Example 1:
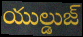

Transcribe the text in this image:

యుల్డుజ్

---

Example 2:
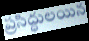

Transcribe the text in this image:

ప్రసిద్ధులయిన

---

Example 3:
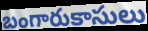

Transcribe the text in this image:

బంగారుకాసులు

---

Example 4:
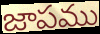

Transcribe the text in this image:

జాపము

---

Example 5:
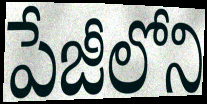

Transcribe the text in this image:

పేజీలోని